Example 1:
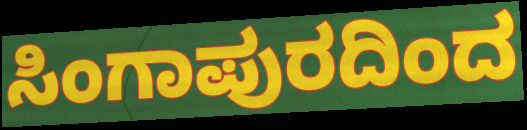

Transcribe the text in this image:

ಸಿಂಗಾಪುರದಿಂದ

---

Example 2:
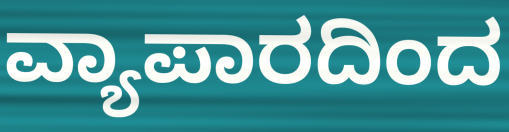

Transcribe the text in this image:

ವ್ಯಾಪಾರದಿಂದ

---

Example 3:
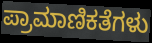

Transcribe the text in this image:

ಪ್ರಾಮಾಣಿಕತೆಗಳು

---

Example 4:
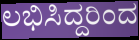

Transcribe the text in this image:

ಲಭಿಸಿದ್ದರಿಂದ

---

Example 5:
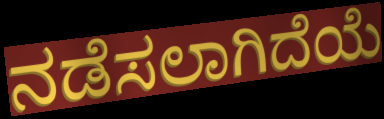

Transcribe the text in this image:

ನಡೆಸಲಾಗಿದೆಯೆ